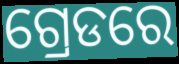
ଗ୍ରେଡରେ